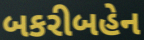
બકરીબહેન